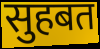
सुहबत